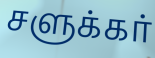
சளுக்கர்